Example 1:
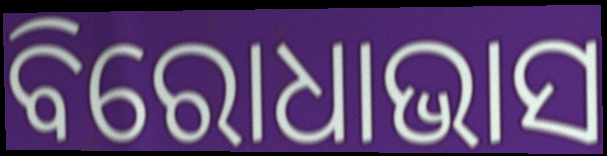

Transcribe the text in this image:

ବିରୋଧାଭାସ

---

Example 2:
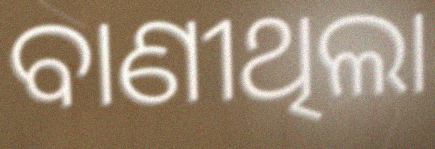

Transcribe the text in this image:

ବାଣୀଥିଲା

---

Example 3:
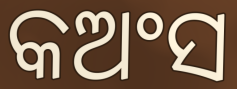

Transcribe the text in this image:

କଅଂସ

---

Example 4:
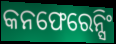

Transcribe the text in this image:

କନଫେରେନ୍ସିଂ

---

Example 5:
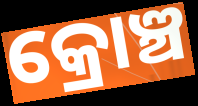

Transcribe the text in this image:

କ୍ରୋଞ୍ଚ